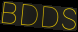
BDDS